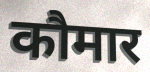
कौमार